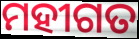
ମହୀଗତ